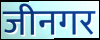
जीनगर